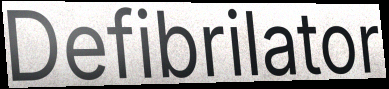
Defibrilator